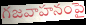
గజవాహనంపై